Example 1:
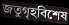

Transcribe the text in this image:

জতুগৃহবিশেষ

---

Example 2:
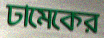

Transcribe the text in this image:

ঢামেকের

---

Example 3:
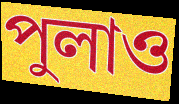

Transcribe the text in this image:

পুলাও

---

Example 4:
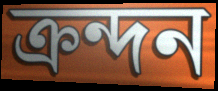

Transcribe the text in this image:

ক্রন্দন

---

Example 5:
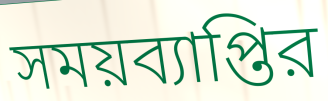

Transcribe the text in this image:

সময়ব্যাপ্তির